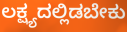
ಲಕ್ಷ್ಯದಲ್ಲಿಡಬೇಕು